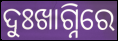
ଦୁଃଖାଗ୍ନିରେ